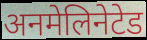
अनमेलिनेटेड